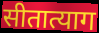
सीतात्याग